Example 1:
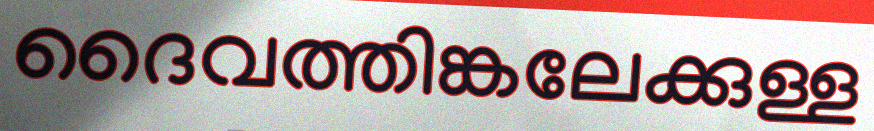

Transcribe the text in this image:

ദൈവത്തിങ്കലേക്കുള്ള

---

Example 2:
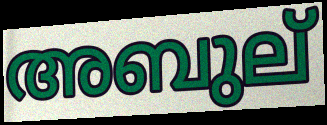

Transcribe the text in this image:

അബുല്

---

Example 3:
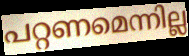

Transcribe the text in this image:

പറ്റണമെന്നില്ല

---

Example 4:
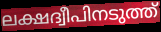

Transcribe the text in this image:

ലക്ഷദ്വീപിനടുത്ത്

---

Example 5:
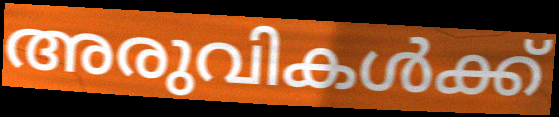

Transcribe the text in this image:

അരുവികൾക്ക്